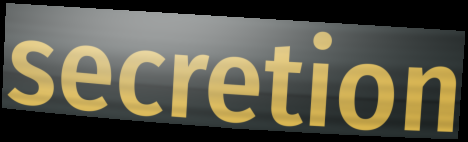
secretion